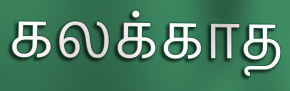
கலக்காத